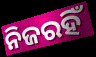
ନିଜରହିଁ